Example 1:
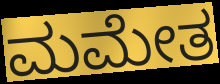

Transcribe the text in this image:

ಮಮೇತ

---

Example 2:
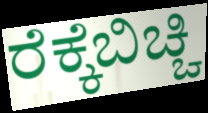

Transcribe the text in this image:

ರೆಕ್ಕೆಬಿಚ್ಚಿ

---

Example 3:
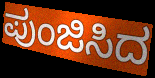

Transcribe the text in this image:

ಪುಂಜಿಸಿದ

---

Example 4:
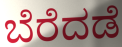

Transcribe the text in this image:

ಬೆರೆದಡೆ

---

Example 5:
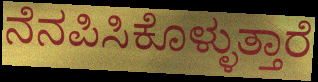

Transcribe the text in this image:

ನೆನಪಿಸಿಕೊಳ್ಳುತ್ತಾರೆ